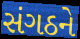
સંગઠને